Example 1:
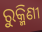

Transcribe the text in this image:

ରୁକ୍ମିଣୀ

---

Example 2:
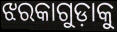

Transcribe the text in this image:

ଝରକାଗୁଡ଼ାକୁ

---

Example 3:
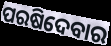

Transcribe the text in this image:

ପରଷିଦେବାର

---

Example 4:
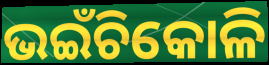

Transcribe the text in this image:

ଭଇଁଚିକୋଳି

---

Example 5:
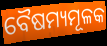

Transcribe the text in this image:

ବୈଷମ୍ୟମୂଳକ